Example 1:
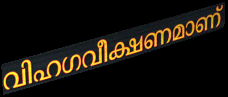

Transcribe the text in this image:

വിഹഗവീക്ഷണമാണ്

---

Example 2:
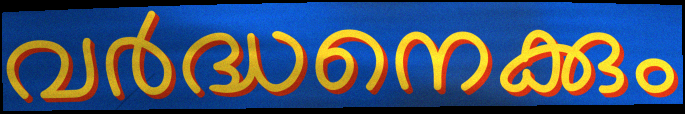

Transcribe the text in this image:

വർദ്ധനെക്കും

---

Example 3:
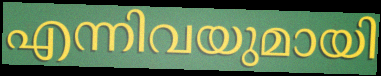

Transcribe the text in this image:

എന്നിവയുമായി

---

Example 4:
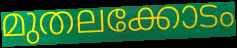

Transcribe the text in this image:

മുതലക്കോടം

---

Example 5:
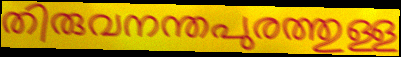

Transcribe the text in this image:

തിരുവനന്തപുരത്തുള്ള